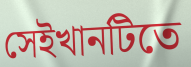
সেইখানটিতে